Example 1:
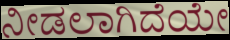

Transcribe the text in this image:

ನೀಡಲಾಗಿದೆಯೇ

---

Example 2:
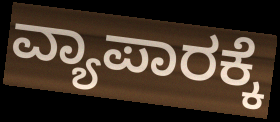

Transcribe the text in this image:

ವ್ಯಾಪಾರಕ್ಕೆ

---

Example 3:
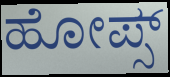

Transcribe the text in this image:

ಹೋಪ್ಸ್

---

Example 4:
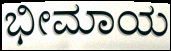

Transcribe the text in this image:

ಭೀಮಾಯ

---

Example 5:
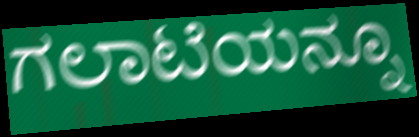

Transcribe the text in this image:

ಗಲಾಟೆಯನ್ನೂ